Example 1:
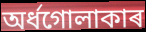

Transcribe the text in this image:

অৰ্ধগোলাকাৰ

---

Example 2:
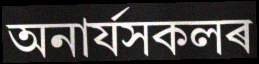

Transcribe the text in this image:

অনাৰ্যসকলৰ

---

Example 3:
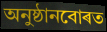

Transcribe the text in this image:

অনুষ্ঠানবোৰত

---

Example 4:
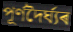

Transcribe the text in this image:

পূৰ্ণদৈৰ্ঘ্যৰ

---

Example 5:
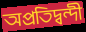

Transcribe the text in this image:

অপ্ৰতিদ্বন্দী